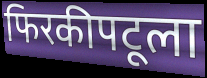
फिरकीपटूला